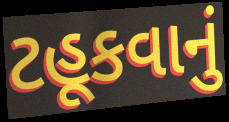
ટહૂકવાનું